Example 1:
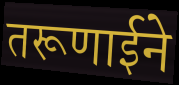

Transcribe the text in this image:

तरूणाईने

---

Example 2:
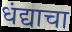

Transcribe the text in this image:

धंद्याचा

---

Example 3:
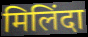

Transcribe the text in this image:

मिलिंदा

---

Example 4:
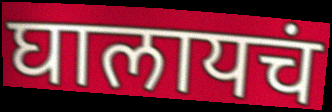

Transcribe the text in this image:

घालायचं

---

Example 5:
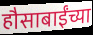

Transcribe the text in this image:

हौसाबाईंच्या